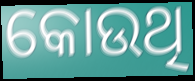
କୋଉଥି